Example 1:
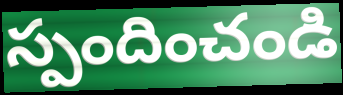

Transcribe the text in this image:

స్పందించండి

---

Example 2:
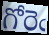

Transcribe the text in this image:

గోరెఁ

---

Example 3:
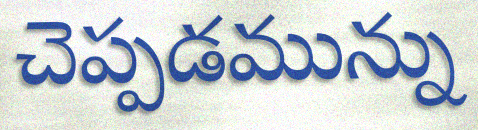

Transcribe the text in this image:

చెప్పడమున్ను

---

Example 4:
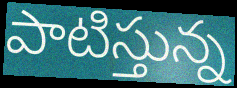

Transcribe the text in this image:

పాటిస్తున్న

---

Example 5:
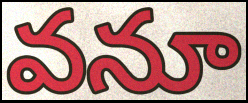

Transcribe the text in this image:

వనూ